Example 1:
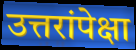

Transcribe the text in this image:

उत्तरांपेक्षा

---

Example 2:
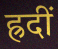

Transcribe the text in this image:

ह्रदीं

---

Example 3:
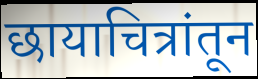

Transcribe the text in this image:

छायाचित्रांतून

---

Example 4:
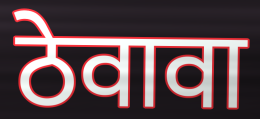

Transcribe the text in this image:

ठेवावा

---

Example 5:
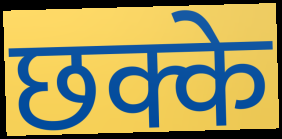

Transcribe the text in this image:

छक्के